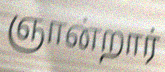
ஞான்றார்